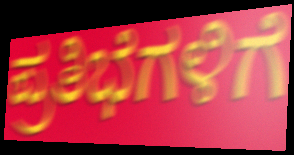
ಪ್ರತಿಭೆಗಳಿಗೆ